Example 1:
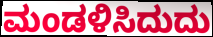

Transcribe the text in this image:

ಮಂಡಳಿಸಿದುದು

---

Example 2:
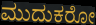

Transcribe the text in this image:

ಮುದುಕರೋ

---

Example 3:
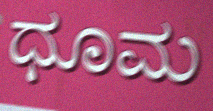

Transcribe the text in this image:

ಧೂಮ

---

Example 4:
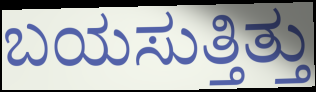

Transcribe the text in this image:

ಬಯಸುತ್ತಿತ್ತು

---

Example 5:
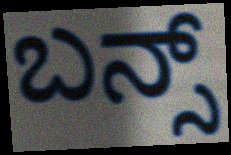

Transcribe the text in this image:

ಬನ್ಸ್